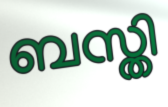
ബസ്തി